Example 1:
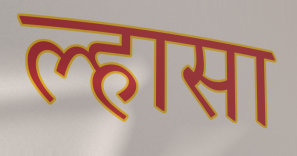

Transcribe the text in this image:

ल्हासा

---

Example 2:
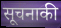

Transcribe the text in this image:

सूचनाकी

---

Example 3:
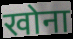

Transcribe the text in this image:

खोना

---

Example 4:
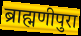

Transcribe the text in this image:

ब्राह्मणीपुरा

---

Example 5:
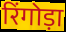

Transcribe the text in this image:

रिंगोड़ा